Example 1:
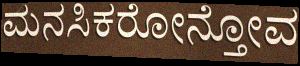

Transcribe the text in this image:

ಮನಸಿಕರೋನ್ತೋವ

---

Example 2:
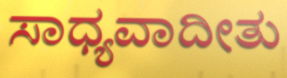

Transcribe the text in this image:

ಸಾಧ್ಯವಾದೀತು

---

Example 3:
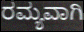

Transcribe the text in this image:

ರಮ್ಯವಾಗಿ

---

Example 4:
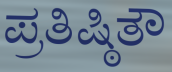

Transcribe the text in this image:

ಪ್ರತಿಷ್ಠಿತೌ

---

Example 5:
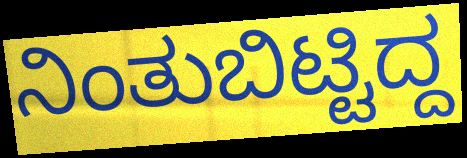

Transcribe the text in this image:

ನಿಂತುಬಿಟ್ಟಿದ್ದ